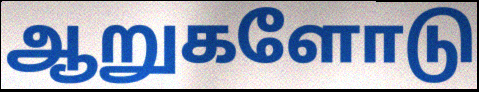
ஆறுகளோடு